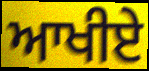
ਆਖੀਏ